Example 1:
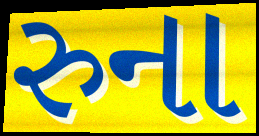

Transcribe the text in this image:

રુના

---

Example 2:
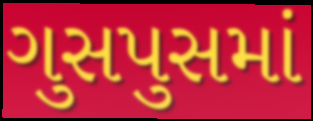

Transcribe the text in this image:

ગુસપુસમાં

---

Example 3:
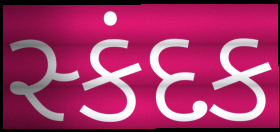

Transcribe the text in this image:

સ્કંદક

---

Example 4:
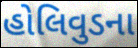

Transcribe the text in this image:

હોલિવુડના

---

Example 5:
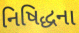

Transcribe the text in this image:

નિષિદ્ધના